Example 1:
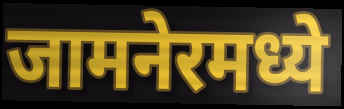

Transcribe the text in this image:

जामनेरमध्ये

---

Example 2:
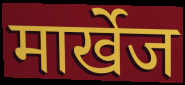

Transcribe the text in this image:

मार्खेज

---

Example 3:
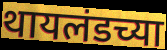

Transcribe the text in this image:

थायलंडच्या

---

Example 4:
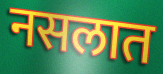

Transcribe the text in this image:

नसलात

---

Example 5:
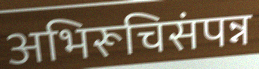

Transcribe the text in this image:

अभिरूचिसंपन्न